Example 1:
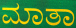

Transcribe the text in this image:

ಮಾತಾ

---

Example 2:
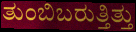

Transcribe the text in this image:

ತುಂಬಿಬರುತ್ತಿತ್ತು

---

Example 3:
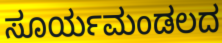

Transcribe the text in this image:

ಸೂರ್ಯಮಂಡಲದ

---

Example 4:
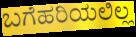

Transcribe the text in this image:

ಬಗೆಹರಿಯಲಿಲ್ಲ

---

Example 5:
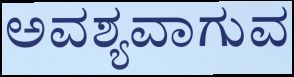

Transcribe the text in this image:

ಅವಶ್ಯವಾಗುವ